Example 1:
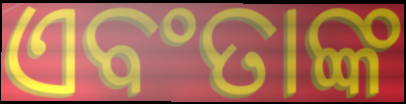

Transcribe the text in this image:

ଏବଂତାଙ୍କ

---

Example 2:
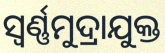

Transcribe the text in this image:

ସ୍ବର୍ଣ୍ଣମୁଦ୍ରାଯୁକ୍ତ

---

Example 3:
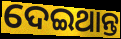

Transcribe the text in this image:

ଦେଇଥାନ୍ତ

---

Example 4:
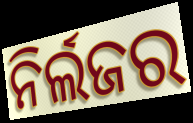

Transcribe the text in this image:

ନିର୍ଲଜର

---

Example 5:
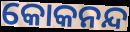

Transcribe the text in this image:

କୋକନନ୍ଦ